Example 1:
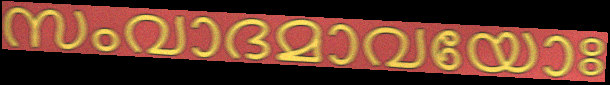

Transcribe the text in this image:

സംവാദമാവയോഃ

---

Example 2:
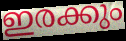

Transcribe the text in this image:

ഇരക്കും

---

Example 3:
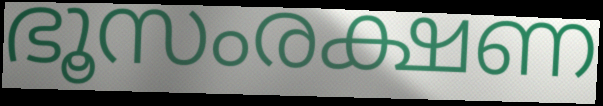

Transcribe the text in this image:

ഭൂസംരക്ഷണ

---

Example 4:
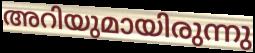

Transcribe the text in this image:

അറിയുമായിരുന്നു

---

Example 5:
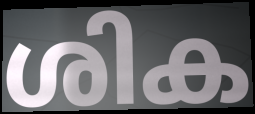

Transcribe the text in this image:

ശിക